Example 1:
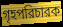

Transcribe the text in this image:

গৃহপরিচারক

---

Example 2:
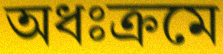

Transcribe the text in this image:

অধঃক্রমে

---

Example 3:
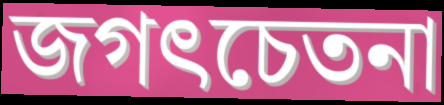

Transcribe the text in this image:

জগৎচেতনা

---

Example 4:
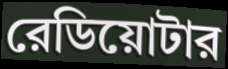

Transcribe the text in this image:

রেডিয়োটার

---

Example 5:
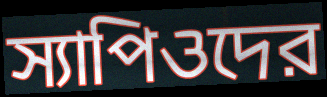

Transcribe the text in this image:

স্যাপিওদের